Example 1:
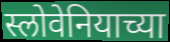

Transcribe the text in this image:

स्लोवेनियाच्या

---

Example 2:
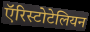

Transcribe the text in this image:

ऍरिस्टोटेलियन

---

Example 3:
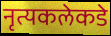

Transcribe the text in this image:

नृत्यकलेकडे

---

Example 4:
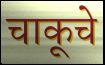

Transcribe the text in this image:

चाकूचे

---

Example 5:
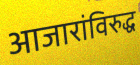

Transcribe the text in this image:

आजारांविरुद्ध